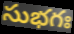
సుభగః